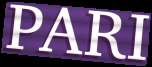
PARI